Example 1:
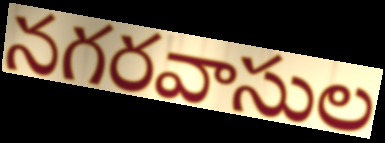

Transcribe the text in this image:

నగరవాసుల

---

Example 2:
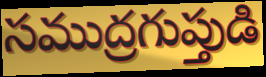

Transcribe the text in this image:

సముద్రగుప్తుడి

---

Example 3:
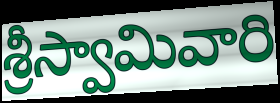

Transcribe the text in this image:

శ్రీస్వామివారి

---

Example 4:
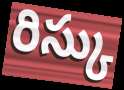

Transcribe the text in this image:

రిస్కు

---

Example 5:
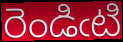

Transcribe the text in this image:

రెండిఁటి